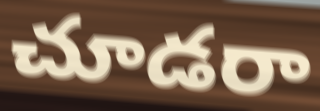
చూడరా